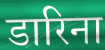
डारिना